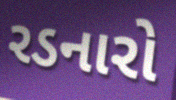
રડનારો